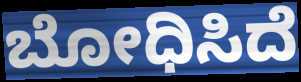
ಬೋಧಿಸಿದೆ